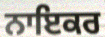
ਨਾਇਕਰ